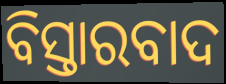
ବିସ୍ତାରବାଦ